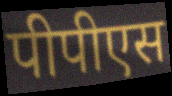
पीपीएस